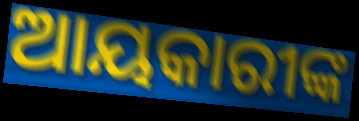
ଆୟକାରୀଙ୍କ